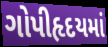
ગોપીહૃદયમાં